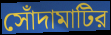
সোঁদামাটির